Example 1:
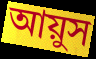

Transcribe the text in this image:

আয়ুস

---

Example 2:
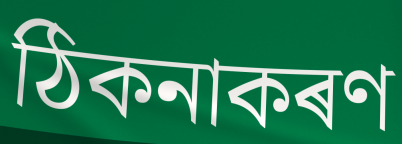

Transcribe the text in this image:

ঠিকনাকৰণ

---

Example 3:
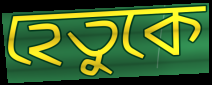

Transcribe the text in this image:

হেতুকে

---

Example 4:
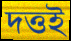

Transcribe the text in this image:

দত্তই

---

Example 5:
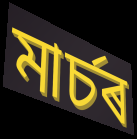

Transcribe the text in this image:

মাৰ্চৰ